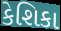
કેશિકા